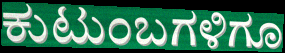
ಕುಟುಂಬಗಳಿಗೂ